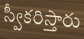
స్వీకరిస్తారు